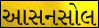
આસનસોલ